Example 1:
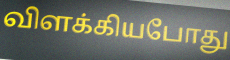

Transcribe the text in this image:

விளக்கியபோது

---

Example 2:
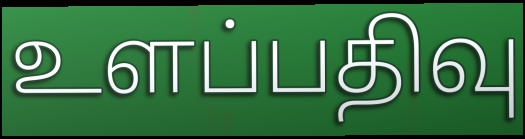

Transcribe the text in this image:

உளப்பதிவு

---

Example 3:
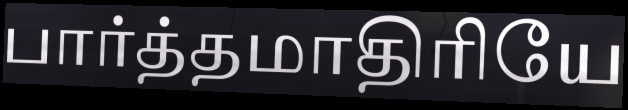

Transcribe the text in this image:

பார்த்தமாதிரியே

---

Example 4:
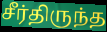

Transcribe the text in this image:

சீர்திருந்த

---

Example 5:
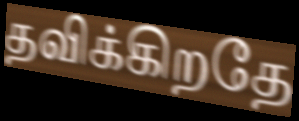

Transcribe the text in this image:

தவிக்கிறதே